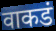
वाकडं